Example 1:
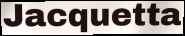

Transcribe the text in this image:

Jacquetta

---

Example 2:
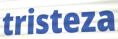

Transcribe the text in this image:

tristeza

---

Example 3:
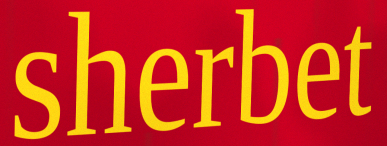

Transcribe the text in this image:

sherbet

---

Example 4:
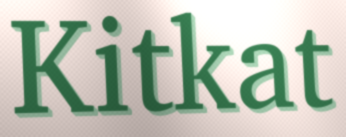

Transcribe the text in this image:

Kitkat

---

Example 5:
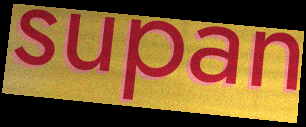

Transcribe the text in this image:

supan